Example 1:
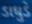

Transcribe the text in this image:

ડાઘુડે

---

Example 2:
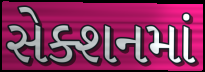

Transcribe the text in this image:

સેક્શનમાં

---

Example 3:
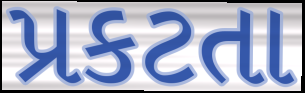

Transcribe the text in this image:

પ્રકટતા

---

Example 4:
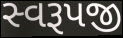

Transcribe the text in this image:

સ્વરૂપજી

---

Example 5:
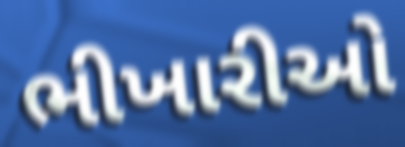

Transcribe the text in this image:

ભીખારીઓ